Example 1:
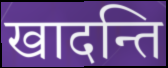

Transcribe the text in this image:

खादन्ति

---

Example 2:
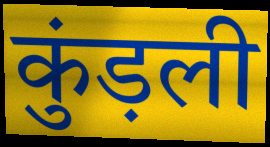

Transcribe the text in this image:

कुंड़ली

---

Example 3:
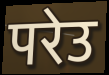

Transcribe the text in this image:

परेउ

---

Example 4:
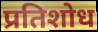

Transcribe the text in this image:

प्रतिशोध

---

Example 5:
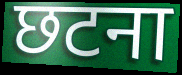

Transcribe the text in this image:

छटना